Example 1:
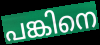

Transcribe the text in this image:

പങ്കിനെ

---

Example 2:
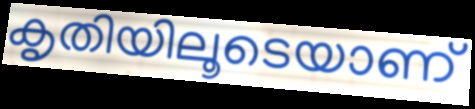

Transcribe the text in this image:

കൃതിയിലൂടെയാണ്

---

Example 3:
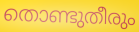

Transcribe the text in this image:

തൊണ്ടുതീരും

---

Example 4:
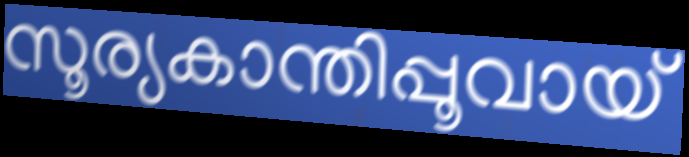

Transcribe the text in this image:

സൂര്യകാന്തിപ്പൂവായ്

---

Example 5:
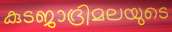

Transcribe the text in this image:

കുടജാദ്രിമലയുടെ